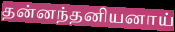
தன்னந்தனியனாய்